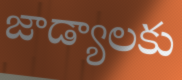
జాడ్యాలకు